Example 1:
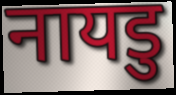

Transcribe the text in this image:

नायडु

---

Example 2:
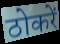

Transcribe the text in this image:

ठोकरें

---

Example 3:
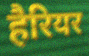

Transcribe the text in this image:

हैरियर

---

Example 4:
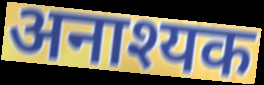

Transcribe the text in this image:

अनाश्यक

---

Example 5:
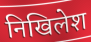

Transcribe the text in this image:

निखिलेश